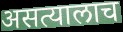
असत्यालाच